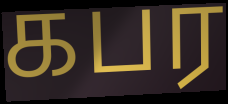
கபர